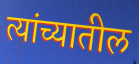
त्यांच्यातील